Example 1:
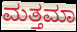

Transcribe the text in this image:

ಮತ್ತಮಾ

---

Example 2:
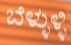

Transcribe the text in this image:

ಬೆಳ್ಳುಳ್ಳಿ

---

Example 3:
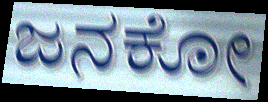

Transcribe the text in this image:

ಜನಕೋ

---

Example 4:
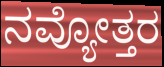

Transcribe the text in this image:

ನವ್ಯೋತ್ತರ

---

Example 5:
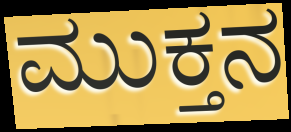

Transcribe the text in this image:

ಮುಕ್ತನ